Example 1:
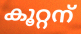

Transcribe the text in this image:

കൂറ്റന്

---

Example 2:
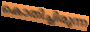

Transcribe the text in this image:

കൊതിച്ചിരുന്ന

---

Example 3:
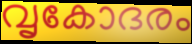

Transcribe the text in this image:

വൃകോദരം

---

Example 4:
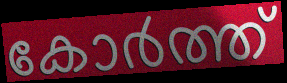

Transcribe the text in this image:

കോർത്ത്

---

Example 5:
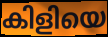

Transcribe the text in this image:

കിളിയെ